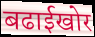
बढाईखोर